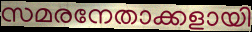
സമരനേതാക്കളായി